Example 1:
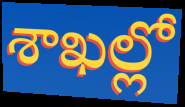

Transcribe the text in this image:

శాఖల్లో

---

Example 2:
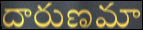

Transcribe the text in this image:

దారుణమా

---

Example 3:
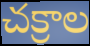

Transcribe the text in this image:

చక్రాల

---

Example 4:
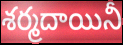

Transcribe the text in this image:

శర్మదాయినీ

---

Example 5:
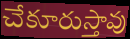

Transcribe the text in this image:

చేకూరుస్తావు